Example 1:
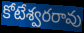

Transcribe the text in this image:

కోటేశ్వరరావు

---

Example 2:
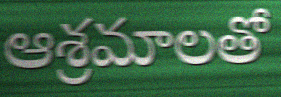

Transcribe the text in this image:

ఆశ్రమాలతో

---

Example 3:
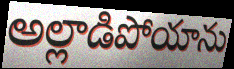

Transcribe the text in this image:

అల్లాడిపోయాను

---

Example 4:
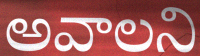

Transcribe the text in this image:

అవాలని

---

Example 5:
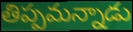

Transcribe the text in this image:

తిప్పమన్నాడు